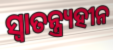
ସ୍ଵାତନ୍ତ୍ର୍ୟହୀନ